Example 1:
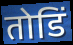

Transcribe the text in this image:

तोडिं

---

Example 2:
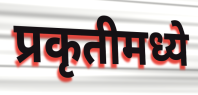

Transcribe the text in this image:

प्रकृतीमध्ये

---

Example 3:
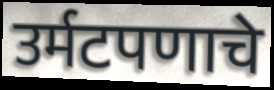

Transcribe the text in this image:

उर्मटपणाचे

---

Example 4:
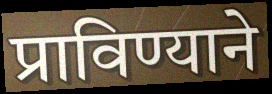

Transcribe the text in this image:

प्राविण्याने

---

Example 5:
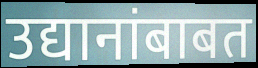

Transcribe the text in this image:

उद्यानांबाबत